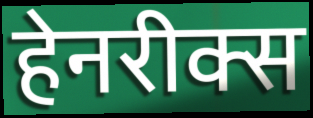
हेनरीक्स